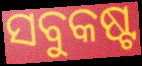
ସବୁକଷ୍ଟ